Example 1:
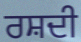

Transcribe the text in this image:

ਰਸ਼ਦੀ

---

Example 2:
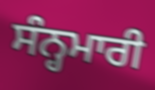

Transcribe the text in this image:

ਸੰਨ੍ਹਮਾਰੀ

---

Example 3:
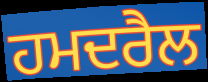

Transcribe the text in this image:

ਹਮਦਰੈਲ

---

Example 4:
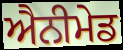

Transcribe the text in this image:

ਐਨੀਮੇਡ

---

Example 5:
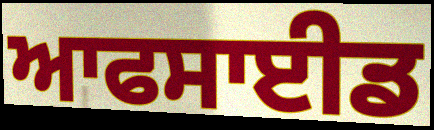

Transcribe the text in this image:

ਆਫਸਾਈਡ